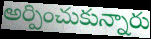
అర్పించుకున్నారు